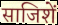
साजिशें